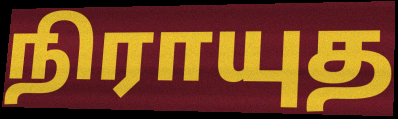
நிராயுத